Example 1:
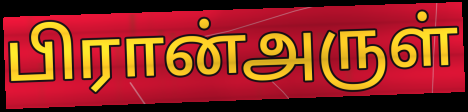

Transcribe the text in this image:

பிரான்அருள்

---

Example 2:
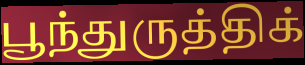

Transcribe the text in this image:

பூந்துருத்திக்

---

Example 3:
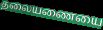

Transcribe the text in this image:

தலையணையை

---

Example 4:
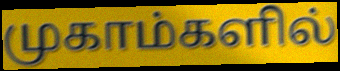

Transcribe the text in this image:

முகாம்களில்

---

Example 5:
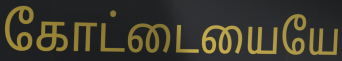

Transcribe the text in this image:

கோட்டையையே